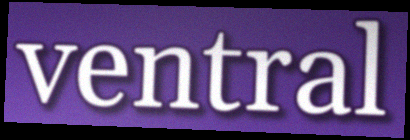
ventral